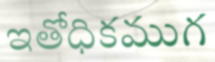
ఇతోధికముగ